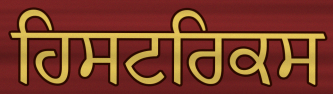
ਹਿਸਟਰਿਕਸ